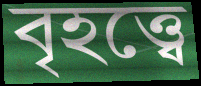
বৃহত্ত্বে